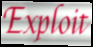
Exploit